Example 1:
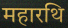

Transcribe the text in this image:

महारथि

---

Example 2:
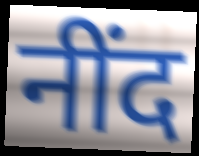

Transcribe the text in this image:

नींद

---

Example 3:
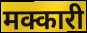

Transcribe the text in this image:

मक्कारी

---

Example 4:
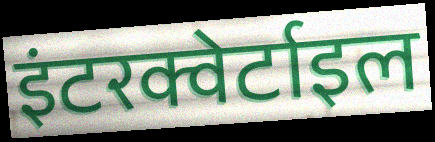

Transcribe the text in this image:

इंटरक्वेर्टाइल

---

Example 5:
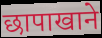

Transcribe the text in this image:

छापाखाने